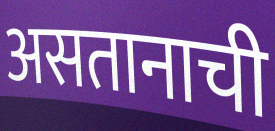
असतानाची